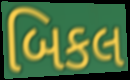
બિકલ